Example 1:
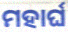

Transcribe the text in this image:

ମହାର୍ଘ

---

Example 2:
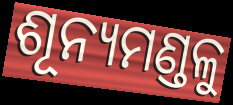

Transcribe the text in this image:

ଶୂନ୍ୟମଣ୍ଡଳୁ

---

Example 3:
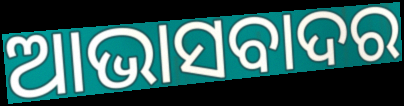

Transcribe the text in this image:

ଆଭାସବାଦର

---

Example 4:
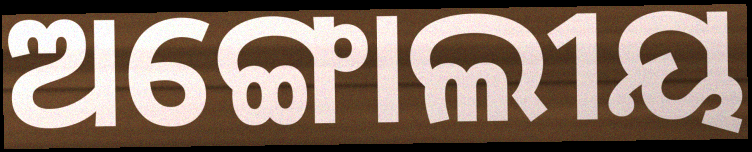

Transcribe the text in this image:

ଅଙ୍ଗୋଲୀୟ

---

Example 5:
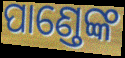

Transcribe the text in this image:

ପାଣ୍ଡେଙ୍କ